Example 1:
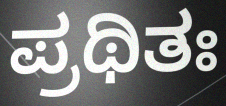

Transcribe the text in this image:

ಪ್ರಥಿತಃ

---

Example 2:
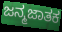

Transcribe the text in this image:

ಜನ್ಮಜಾತಕ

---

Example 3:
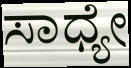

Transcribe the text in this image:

ಸಾಧ್ಯೇ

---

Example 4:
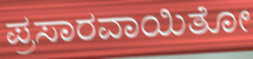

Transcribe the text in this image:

ಪ್ರಸಾರವಾಯಿತೋ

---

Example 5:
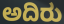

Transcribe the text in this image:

ಅದಿರು